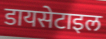
डायसेटाइल